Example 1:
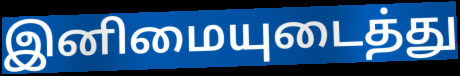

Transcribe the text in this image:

இனிமையுடைத்து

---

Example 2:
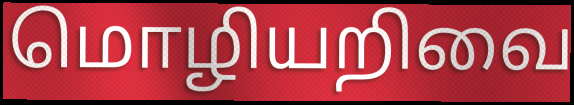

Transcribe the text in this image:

மொழியறிவை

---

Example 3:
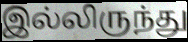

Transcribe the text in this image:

இல்லிருந்து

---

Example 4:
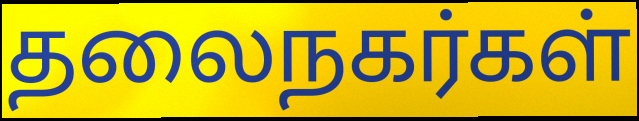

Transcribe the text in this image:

தலைநகர்கள்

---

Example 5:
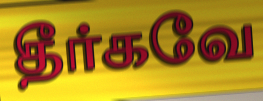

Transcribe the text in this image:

தீர்கவே